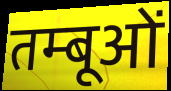
तम्बूओं